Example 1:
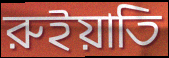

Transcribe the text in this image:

রুইয়াতি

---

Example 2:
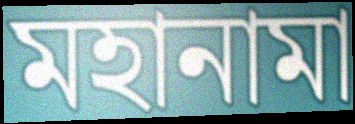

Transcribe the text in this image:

মহানামা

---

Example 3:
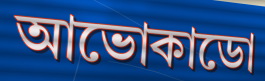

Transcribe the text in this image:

আভোকাডো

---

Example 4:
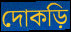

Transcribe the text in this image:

দোকড়ি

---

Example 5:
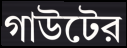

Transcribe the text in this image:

গাউটের